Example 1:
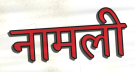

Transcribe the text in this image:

नामली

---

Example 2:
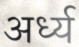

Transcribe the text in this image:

अर्ध्य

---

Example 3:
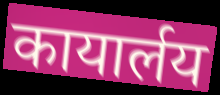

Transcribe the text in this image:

कायार्लय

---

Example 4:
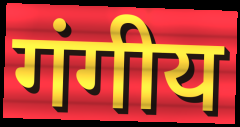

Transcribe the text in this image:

गंगीय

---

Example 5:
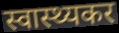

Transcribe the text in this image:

स्वास्थ्यकर